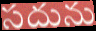
సదును